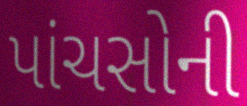
પાંચસોની